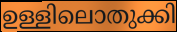
ഉള്ളിലൊതുക്കി